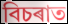
বিচৰাত